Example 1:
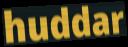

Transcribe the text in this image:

huddar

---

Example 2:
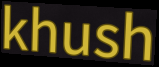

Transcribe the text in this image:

khush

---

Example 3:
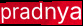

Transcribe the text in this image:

pradnya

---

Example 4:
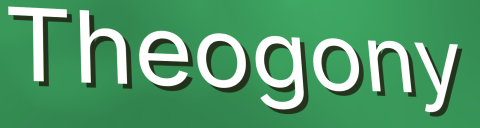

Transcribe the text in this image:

Theogony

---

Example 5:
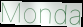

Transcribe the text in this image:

Monda